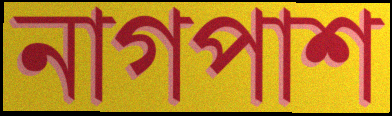
নাগপাশ